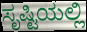
ಸೃಷ್ಟಿಯಲ್ಲಿ